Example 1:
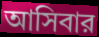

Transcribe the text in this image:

আসিবার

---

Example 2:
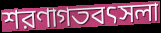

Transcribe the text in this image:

শরণাগতবৎসলা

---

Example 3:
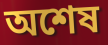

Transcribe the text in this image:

অশেষ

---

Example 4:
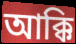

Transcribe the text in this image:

আক্কি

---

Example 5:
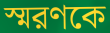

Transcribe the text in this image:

স্মরণকে